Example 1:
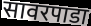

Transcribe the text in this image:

सावरपाडा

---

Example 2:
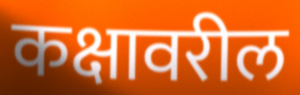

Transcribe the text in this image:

कक्षावरील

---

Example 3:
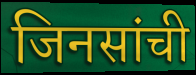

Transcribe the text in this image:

जिनसांची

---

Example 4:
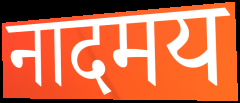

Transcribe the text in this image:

नादमय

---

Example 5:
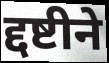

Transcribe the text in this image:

द्दष्टीने